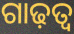
ଗାଢ଼ତ୍ବ